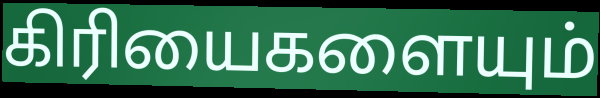
கிரியைகளையும்